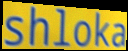
shloka